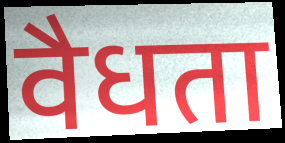
वैधता